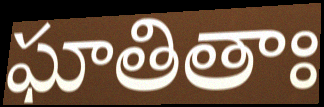
ఘాతితాః